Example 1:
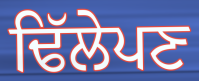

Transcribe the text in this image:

ਢਿੱਲੇਪਣ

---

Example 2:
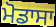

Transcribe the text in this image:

ਮੋਡਾਸਾ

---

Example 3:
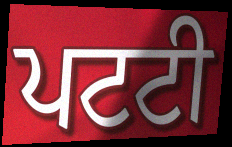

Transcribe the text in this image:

ਪਟਟੀ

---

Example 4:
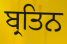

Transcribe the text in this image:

ਬ੍ਰਤਿਨ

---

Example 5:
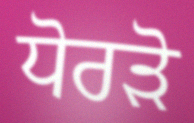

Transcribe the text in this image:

ਧੋਰੜੋ